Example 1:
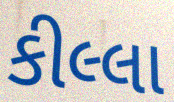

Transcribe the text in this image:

કીલ્લા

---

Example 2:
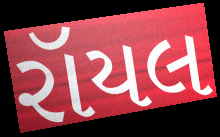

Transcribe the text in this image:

રૉયલ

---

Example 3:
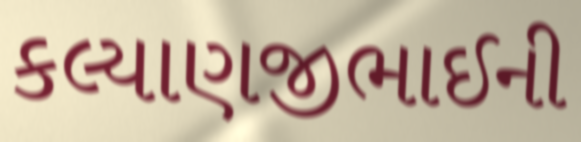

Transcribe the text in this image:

કલ્યાણજીભાઈની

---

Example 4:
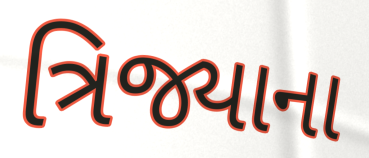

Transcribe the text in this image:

ત્રિજ્યાના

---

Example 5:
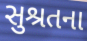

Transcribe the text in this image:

સુશ્રતના